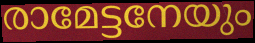
രാമേട്ടനേയും